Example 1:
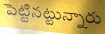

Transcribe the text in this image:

పెట్టినట్టున్నారు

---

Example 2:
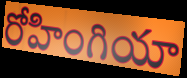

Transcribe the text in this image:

రోహింగియా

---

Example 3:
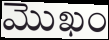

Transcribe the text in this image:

మొఖం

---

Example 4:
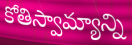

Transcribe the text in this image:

కోతిస్వామ్యాన్ని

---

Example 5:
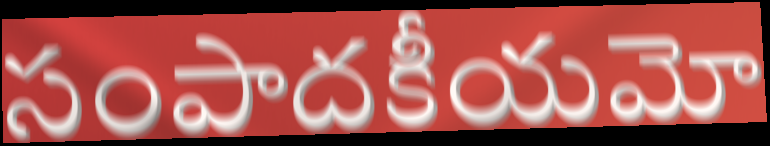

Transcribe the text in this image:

సంపాదకీయమో